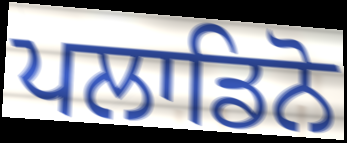
ਪਲਾਡਿਨੋ